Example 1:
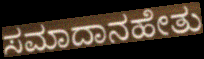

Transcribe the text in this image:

ಸಮಾದಾನಹೇತು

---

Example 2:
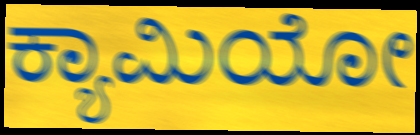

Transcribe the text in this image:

ಕ್ಯಾಮಿಯೋ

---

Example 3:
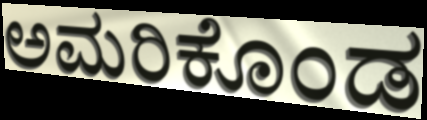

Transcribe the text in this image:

ಅಮರಿಕೊಂಡ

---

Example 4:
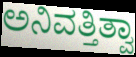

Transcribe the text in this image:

ಅನಿವತ್ತಿತ್ವಾ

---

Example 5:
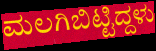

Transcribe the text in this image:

ಮಲಗಿಬಿಟ್ಟಿದ್ದಳು